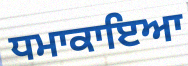
ਧਮਾਕਾਇਆ